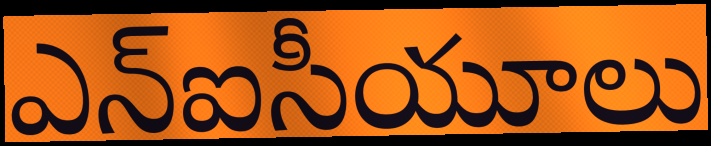
ఎన్ఐసీయూలు